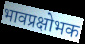
भावप्रक्षोभक